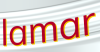
lamar